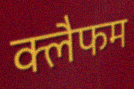
क्लैफम